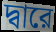
দ্বারে